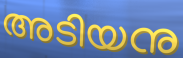
അടിയനു